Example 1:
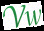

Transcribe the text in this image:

Vw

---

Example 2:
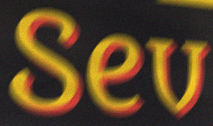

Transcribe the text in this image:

Seu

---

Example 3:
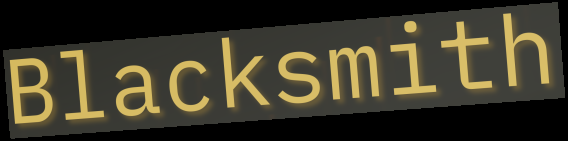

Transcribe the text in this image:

Blacksmith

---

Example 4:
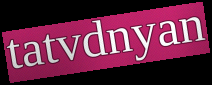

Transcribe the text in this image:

tatvdnyan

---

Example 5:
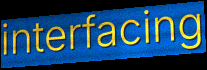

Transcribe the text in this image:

interfacing